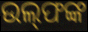
ଉଲ୍‌ଫଙ୍କ